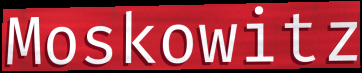
Moskowitz